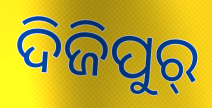
ଦିଜିପୁର୍